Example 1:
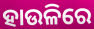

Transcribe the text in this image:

ହାଉଳିରେ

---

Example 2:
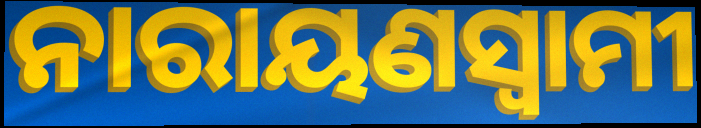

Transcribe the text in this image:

ନାରାୟଣସ୍ଵାମୀ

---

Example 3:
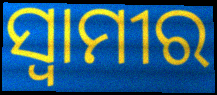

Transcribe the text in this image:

ସ୍ଵାମୀର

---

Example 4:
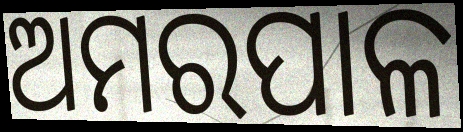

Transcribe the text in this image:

ଅମରପାଳ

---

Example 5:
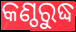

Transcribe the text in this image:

କଣ୍ଠରୁଦ୍ଧ